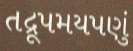
તદ્રૂપમયપણું